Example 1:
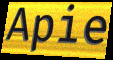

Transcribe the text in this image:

Apie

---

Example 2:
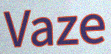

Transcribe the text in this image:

Vaze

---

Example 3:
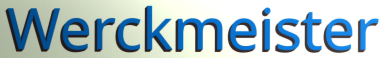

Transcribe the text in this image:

Werckmeister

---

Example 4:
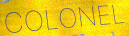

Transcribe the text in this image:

COLONEL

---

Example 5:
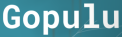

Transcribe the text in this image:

Gopulu